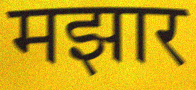
मझार